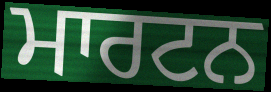
ਮਾਰਟਨ